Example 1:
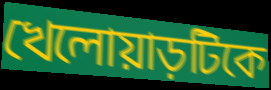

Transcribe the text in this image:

খেলোয়াড়টিকে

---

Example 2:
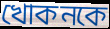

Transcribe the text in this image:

খোকনকে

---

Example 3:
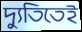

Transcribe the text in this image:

দ্যুতিতেই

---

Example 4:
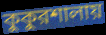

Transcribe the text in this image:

কুকুরশালায়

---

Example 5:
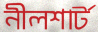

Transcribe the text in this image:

নীলশার্ট